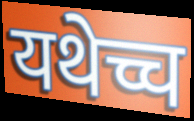
यथेच्च